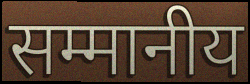
सम्मानीय